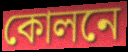
কোলনে